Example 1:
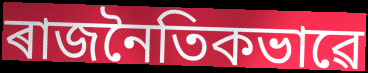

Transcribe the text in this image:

ৰাজনৈতিকভাৱে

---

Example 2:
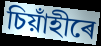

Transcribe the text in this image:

চিয়াঁহীৰে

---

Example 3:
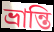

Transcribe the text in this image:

ভ্ৰান্তি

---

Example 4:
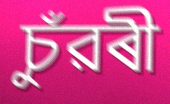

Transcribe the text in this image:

চুঁৱৰী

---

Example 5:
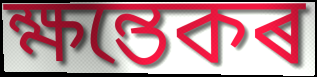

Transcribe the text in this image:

ক্ষন্তেকৰ